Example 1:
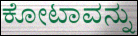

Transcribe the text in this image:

ಕೋಟಾವನ್ನು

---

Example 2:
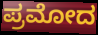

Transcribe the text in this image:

ಪ್ರಮೋದ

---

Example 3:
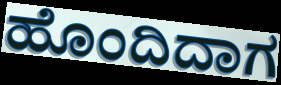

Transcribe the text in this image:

ಹೊಂದಿದಾಗ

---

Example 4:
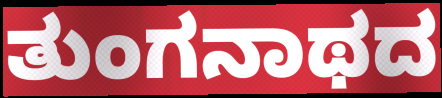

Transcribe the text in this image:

ತುಂಗನಾಥದ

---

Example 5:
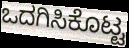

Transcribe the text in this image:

ಒದಗಿಸಿಕೊಟ್ಟ